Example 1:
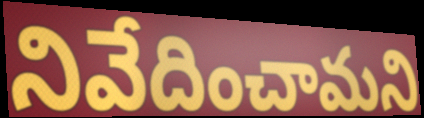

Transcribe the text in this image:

నివేదించామని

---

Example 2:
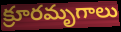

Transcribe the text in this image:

క్రూరమృగాలు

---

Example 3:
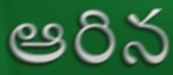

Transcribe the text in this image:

ఆరిన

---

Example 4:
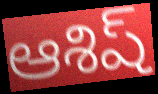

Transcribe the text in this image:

ఆశిష్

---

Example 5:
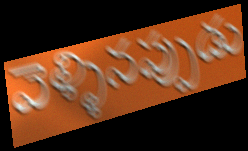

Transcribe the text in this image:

వెళ్ళినప్పుడు